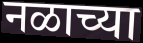
नळाच्या